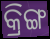
କ୍ରିଙ୍ଗ